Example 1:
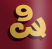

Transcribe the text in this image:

ಷಿ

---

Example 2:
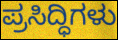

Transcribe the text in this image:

ಪ್ರಸಿದ್ಧಿಗಳು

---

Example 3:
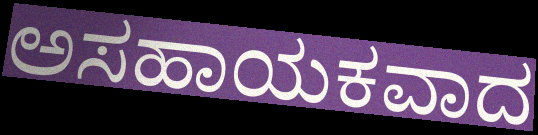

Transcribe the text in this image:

ಅಸಹಾಯಕವಾದ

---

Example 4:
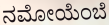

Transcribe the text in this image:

ನಮೋಯೆಂಬೆ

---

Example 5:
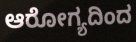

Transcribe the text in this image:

ಆರೋಗ್ಯದಿಂದ